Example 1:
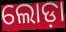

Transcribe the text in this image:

ଲୋଡ଼ା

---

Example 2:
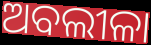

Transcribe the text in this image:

ଅବଲୀଳା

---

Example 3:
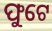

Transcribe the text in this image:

ଫୁଟେ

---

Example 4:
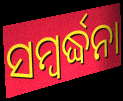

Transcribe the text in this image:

ସମ୍ୱର୍ଦ୍ଧନା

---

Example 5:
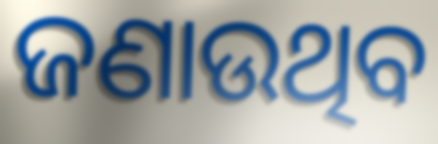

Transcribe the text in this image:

ଜଣାଉଥିବ